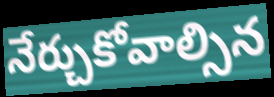
నేర్చుకోవాల్సిన